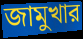
জামুখার